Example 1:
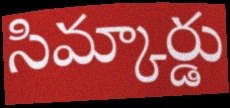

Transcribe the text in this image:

సిమ్కార్డు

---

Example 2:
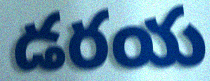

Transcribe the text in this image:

డరయ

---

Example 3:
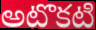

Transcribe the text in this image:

అటొకటి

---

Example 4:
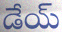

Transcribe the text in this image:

డేయ్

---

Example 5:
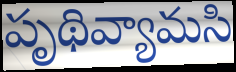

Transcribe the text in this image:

పృథివ్యామసి